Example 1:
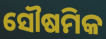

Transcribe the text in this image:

ସୌଷମିକ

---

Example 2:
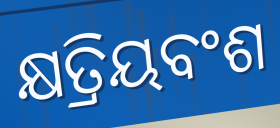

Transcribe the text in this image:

କ୍ଷତ୍ରିୟବଂଶ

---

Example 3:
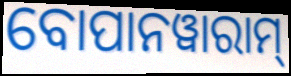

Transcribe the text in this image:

ବୋପାନୱାରାମ୍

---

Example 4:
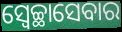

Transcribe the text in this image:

ସ୍ୱେଚ୍ଛାସେବାର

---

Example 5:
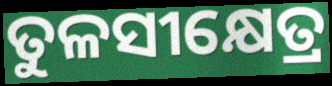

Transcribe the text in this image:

ତୁଳସୀକ୍ଷେତ୍ର